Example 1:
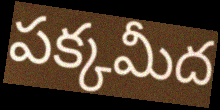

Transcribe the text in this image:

పక్కమీద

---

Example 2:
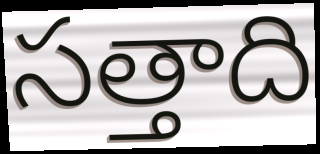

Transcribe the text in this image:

సత్తాది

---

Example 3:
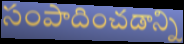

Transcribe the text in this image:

సంపాదించడాన్ని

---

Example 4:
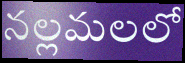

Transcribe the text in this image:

నల్లమలలో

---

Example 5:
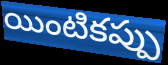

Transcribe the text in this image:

యింటికప్పు